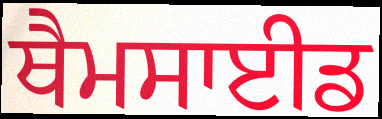
ਥੈਮਸਾਈਡ